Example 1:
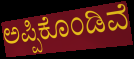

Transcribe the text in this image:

ಅಪ್ಪಿಕೊಂಡಿವೆ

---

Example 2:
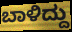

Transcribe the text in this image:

ಬಾಳಿದ್ದು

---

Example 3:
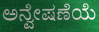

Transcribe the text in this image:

ಅನ್ವೇಷಣೆಯೆ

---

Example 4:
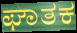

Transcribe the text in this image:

ಘಾತಕ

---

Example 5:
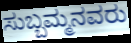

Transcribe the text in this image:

ಸುಬ್ಬಮ್ಮನವರು